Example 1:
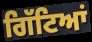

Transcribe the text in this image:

ਗਿੱਟਿਆਂ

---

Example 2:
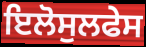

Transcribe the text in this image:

ਇਲੋਸੁਲਫੇਸ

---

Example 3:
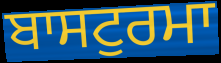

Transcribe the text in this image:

ਬਾਸਟੁਰਮਾ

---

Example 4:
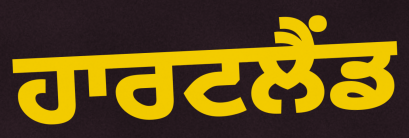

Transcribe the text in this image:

ਹਾਰਟਲੈਂਡ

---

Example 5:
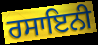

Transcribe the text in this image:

ਰਸਾਇਨੀ